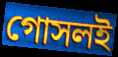
গোসলই